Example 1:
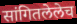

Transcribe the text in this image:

सांगितलेलेच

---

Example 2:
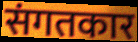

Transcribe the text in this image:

संगतकार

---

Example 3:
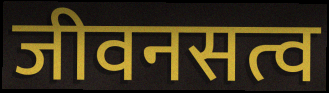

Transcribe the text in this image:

जीवनसत्व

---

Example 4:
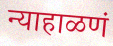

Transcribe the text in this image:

न्याहाळणं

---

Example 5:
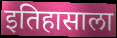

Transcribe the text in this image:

इतिहासाला